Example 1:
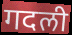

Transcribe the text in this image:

गदली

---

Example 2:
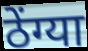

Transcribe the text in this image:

ठेंग्या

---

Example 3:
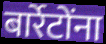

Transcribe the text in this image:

बार्रेटोंना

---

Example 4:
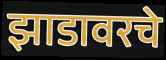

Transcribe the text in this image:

झाडावरचे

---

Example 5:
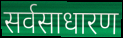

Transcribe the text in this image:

सर्वसाधारण